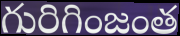
గురిగింజంత